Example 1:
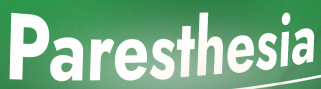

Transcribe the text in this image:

Paresthesia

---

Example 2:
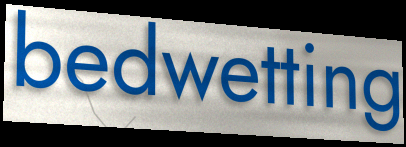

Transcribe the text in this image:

bedwetting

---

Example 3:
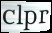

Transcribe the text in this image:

clpr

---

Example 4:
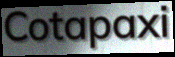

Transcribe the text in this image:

Cotapaxi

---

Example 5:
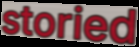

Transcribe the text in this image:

storied